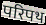
परिपथ